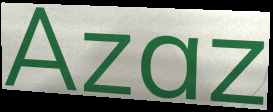
Azaz